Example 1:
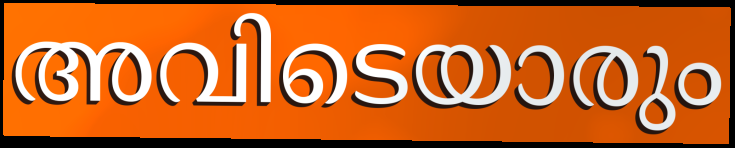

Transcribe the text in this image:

അവിടെയാരും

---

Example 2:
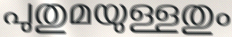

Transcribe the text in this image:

പുതുമയുള്ളതും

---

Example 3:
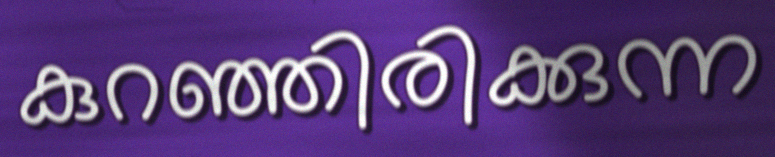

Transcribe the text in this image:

കുറഞ്ഞിരിക്കുന്ന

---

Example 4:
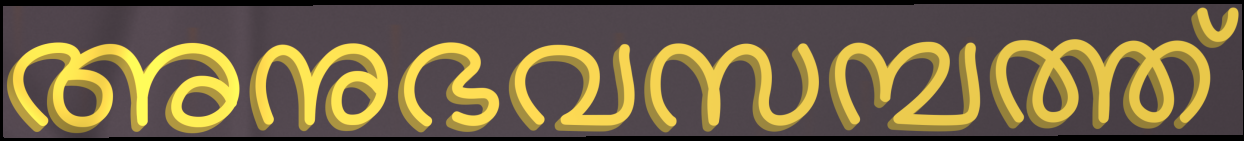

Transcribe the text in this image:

അനുഭവസമ്പത്ത്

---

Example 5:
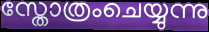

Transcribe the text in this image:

സ്തോത്രംചെയ്യുന്നു